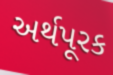
અર્થપૂરક